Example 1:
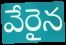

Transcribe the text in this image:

వేరైన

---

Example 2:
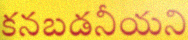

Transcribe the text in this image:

కనబడనీయని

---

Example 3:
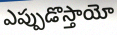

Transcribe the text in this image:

ఎప్పుడొస్తాయో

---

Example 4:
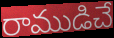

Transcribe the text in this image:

రాముడిచే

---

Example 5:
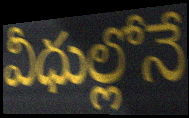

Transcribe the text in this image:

వీధుల్లోనే